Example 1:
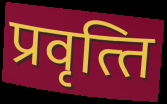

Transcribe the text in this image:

प्रवृत्‍ति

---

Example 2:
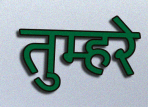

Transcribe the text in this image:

तुम्हरे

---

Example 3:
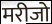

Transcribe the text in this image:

मरीजो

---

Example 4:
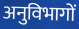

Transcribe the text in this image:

अनुविभागों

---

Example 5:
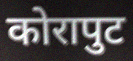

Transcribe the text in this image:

कोरापुट